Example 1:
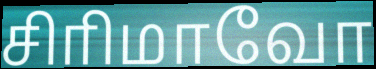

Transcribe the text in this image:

சிரிமாவோ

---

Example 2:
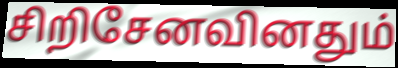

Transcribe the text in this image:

சிறிசேனவினதும்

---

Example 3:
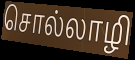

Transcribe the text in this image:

சொல்லாழி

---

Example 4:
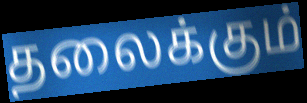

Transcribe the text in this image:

தலைக்கும்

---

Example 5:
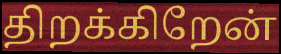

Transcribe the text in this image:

திறக்கிறேன்